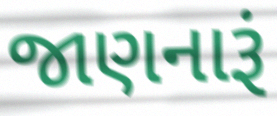
જાણનારૂં